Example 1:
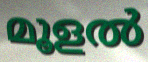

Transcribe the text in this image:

മൂളൽ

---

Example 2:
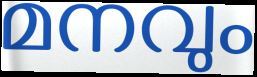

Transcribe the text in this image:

മനവും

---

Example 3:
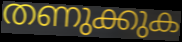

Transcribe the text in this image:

തണുക്കുക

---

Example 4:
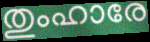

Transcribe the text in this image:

തുംഹാരേ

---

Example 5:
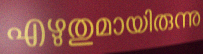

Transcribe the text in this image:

എഴുതുമായിരുന്നു